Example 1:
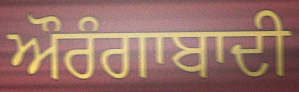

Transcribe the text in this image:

ਔਰੰਗਾਬਾਦੀ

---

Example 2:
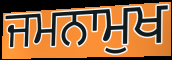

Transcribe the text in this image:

ਜਮਨਾਮੁਖ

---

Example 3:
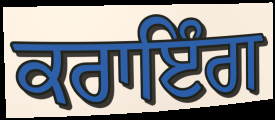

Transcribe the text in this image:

ਕਰਾਇੰਗ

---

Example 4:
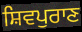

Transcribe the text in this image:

ਸ਼ਿਵਪੁਰਾਣ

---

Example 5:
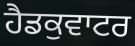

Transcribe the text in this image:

ਹੈਡਕੁਵਾਟਰ